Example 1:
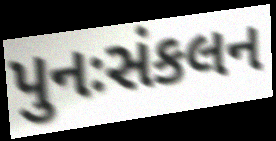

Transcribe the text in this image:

પુનઃસંકલન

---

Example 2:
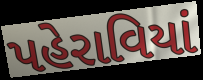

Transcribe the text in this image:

પહેરાવિયાં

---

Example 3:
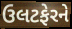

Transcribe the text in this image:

ઉલટફેરને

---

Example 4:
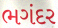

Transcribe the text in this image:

ભગંદર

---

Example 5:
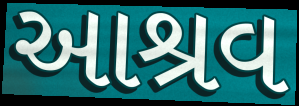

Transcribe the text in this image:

આશ્રવ